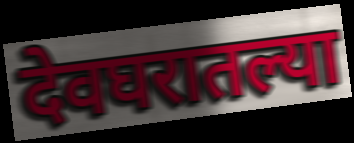
देवघरातल्या